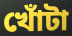
খোঁটা